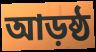
আড়ষ্ঠ